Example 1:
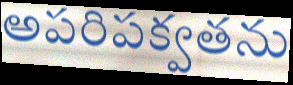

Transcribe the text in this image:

అపరిపక్వతను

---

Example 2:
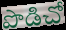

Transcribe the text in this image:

పొడిచో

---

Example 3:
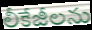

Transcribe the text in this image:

లీకేజీలను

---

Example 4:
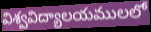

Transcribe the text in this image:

విశ్వవిద్యాలయములలో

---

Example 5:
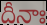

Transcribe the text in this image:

దీనాః